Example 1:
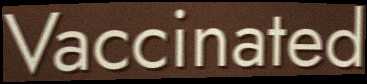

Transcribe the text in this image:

Vaccinated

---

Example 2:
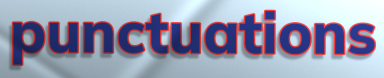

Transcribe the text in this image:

punctuations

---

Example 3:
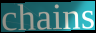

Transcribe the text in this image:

chains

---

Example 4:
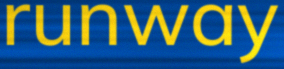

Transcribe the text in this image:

runway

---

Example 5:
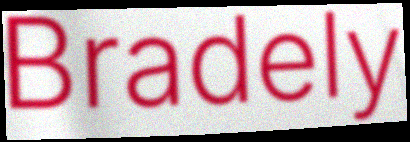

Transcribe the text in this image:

Bradely